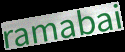
ramabai